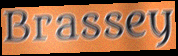
Brassey